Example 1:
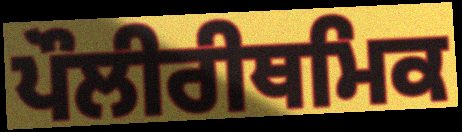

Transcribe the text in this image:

ਪੌਲੀਰੀਥਮਿਕ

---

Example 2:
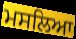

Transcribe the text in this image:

ਮਸਲਿਆ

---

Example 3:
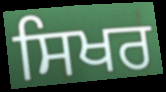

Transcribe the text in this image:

ਸਿਖਰ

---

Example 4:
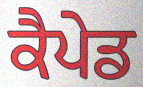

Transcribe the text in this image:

ਕੈਪੇਡ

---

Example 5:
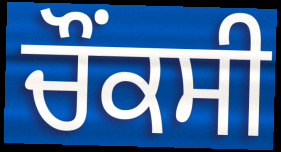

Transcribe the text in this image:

ਚੌਂਕਸੀ